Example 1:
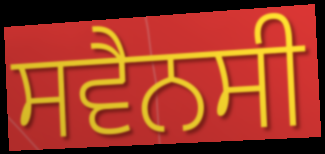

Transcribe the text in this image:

ਸਵੈਨਸੀ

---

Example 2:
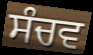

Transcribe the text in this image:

ਸੰਚਵ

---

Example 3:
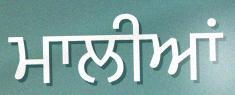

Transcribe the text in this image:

ਮਾਲੀਆਂ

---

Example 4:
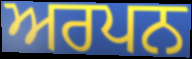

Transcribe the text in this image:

ਅਰਪਨ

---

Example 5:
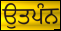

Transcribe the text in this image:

ਉਤਪੰਨ